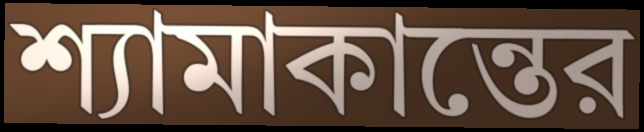
শ্যামাকান্তের